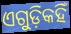
ଏଗୁଡ଼ିକହିଁ